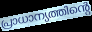
പ്രാധാന്യത്തിന്റെ